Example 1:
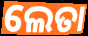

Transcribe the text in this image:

ଲେତା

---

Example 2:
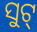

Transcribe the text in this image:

ସୁଟ୍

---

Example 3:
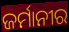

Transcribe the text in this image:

ଜର୍ମାନୀର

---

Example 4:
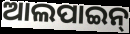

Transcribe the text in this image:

ଆଲପାଇନ୍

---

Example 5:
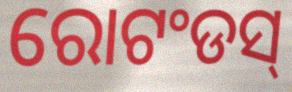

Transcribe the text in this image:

ରୋଟଂଡସ୍